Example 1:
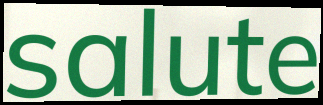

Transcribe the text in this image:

salute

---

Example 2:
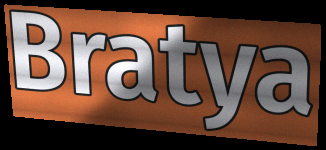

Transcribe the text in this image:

Bratya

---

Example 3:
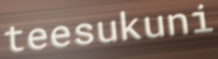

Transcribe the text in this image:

teesukuni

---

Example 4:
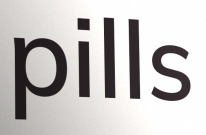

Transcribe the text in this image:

pills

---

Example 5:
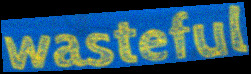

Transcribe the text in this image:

wasteful